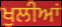
ਖੁਲੀਆਂ